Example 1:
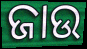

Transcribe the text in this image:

ଜାଉ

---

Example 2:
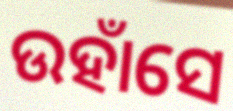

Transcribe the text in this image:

ଉହାଁସେ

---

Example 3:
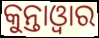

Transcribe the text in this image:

କୁନ୍ତାଓ୍ୱାର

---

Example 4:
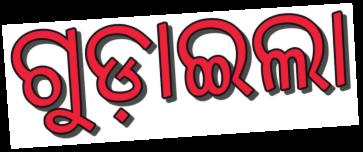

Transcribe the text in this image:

ଗୁଡ଼ାଇଲା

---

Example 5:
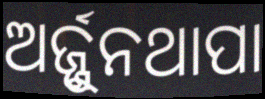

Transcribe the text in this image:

ଅର୍ଜ୍ଜୁନଥାପା